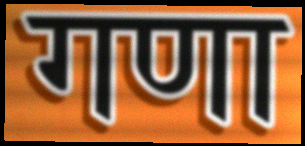
गणा